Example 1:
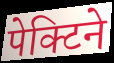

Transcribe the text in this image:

पेक्टिने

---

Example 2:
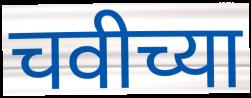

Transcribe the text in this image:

चवीच्या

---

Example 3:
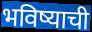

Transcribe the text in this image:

भविष्याची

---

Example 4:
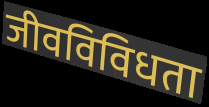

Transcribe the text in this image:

जीवविविधता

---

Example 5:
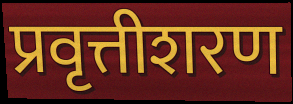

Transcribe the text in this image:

प्रवृत्तीशरण